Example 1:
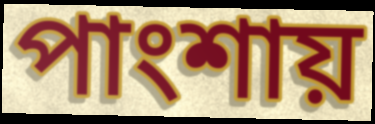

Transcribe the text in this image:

পাংশায়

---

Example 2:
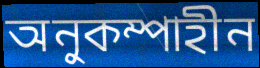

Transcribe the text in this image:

অনুকম্পাহীন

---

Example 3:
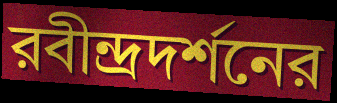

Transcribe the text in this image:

রবীন্দ্রদর্শনের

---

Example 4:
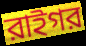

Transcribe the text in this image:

রাইগর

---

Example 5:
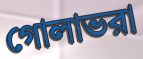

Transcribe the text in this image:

গোলাভরা